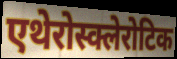
एथेरोस्क्लेरोटिक